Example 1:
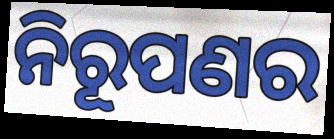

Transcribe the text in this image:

ନିରୂପଣର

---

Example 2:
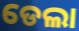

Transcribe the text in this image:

ଡେଲା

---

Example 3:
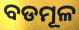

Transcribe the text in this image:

ବଡମୂଳ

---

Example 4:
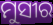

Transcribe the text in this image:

ମୁସୀର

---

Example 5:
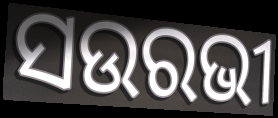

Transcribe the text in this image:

ସଉରଭୀ